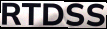
RTDSS